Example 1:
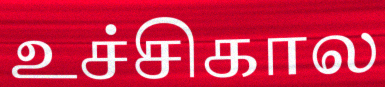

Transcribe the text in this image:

உச்சிகால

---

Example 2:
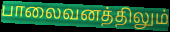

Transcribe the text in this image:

பாலைவனத்திலும்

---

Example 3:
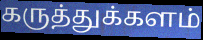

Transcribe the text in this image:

கருத்துக்களம்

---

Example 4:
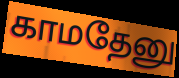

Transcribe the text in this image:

காமதேனு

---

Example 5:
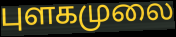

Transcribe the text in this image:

புளகமுலை